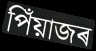
পিঁয়াজৰ